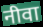
नीवा